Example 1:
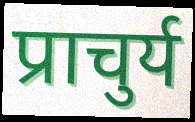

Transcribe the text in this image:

प्राचुर्य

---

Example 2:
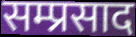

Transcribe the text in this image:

सम्प्रसाद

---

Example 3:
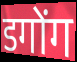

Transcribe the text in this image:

डगोंग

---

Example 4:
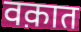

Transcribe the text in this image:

वक़ात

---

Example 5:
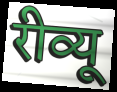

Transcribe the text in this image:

रीव्यू